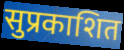
सुप्रकाशित